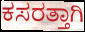
ಕಸರತ್ತಾಗಿ